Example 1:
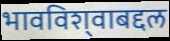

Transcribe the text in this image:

भावविश्वाबद्दल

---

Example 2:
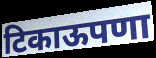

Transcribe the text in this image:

टिकाऊपणा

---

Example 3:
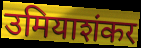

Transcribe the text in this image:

उमियाशंकर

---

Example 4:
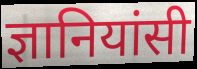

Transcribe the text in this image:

ज्ञानियांसी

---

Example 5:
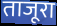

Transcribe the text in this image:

ताजूरा